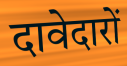
दावेदारों